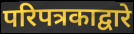
परिपत्रकाद्वारे